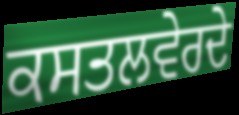
ਕਸਤਲਵੇਰਦੇ